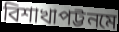
বিশাখাপট্টনমে